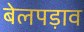
बेलपड़ाव